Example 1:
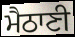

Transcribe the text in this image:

ਮੈਠਾਣੀ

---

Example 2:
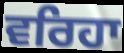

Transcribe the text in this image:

ਵਰਿਹਾ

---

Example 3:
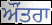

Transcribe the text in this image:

ਔਂਤਰਾ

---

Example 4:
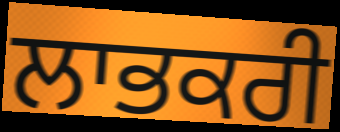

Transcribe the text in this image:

ਲਾਭਕਰੀ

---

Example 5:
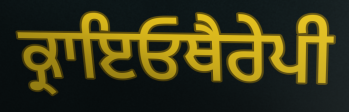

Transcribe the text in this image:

ਕ੍ਰਾਇਓਥੈਰੇਪੀ